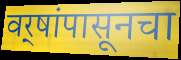
वर्षांपासूनचा